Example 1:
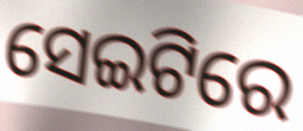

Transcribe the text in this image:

ସେଇଟିରେ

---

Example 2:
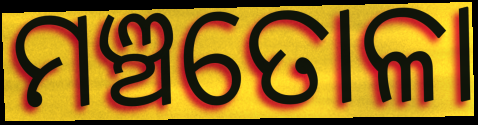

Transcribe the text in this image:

ମଞ୍ଚତୋଳା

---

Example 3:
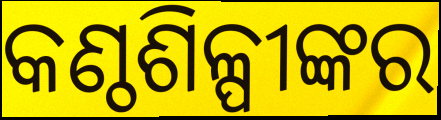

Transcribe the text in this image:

କଣ୍ଠଶିଳ୍ପୀଙ୍କର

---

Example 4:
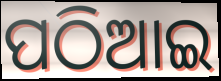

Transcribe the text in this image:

ପଠିଆଇ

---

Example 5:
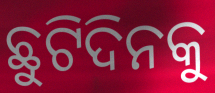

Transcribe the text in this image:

ଛୁଟିଦିନକୁ